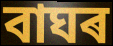
বাঘৰ